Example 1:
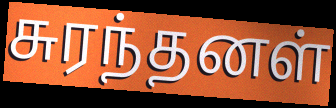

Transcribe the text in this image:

சுரந்தனள்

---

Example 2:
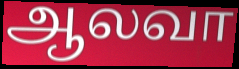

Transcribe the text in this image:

ஆலவா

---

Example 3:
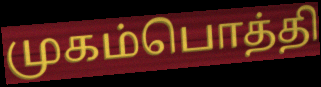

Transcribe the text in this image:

முகம்பொத்தி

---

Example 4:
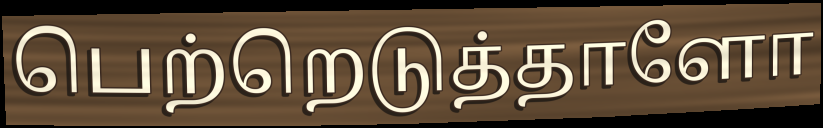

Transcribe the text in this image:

பெற்றெடுத்தாளோ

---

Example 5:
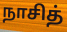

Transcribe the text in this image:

நாசித்